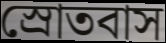
স্রোতবাস